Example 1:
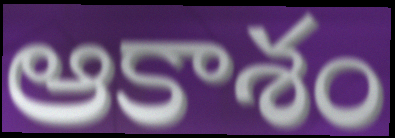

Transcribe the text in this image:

ఆకాశం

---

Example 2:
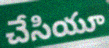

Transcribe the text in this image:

చేసియూ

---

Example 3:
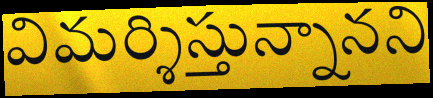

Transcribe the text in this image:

విమర్శిస్తున్నానని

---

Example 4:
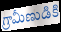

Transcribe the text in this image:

గ్రామీణుడికి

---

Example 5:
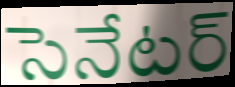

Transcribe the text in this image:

సెనేటర్